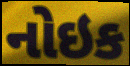
નોઇક